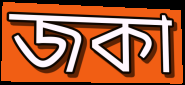
জকা